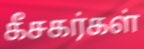
கீசகர்கள்